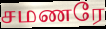
சமணரே